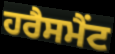
ਹਰੈਸਮੈਂਟ